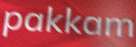
pakkam